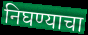
निघण्याचा